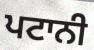
ਪਟਾਨੀ